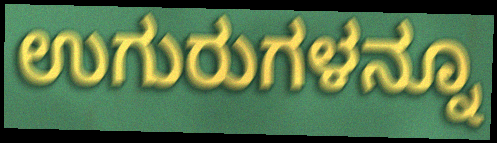
ಉಗುರುಗಳನ್ನೂ